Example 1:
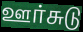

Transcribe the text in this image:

ஊர்சுடு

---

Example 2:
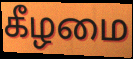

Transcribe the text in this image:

கீழமை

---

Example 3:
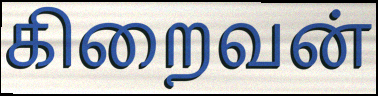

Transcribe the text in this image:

கிறைவன்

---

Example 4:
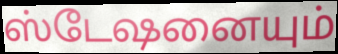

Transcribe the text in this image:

ஸ்டேஷனையும்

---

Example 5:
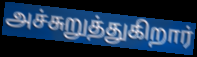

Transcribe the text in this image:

அச்சுறுத்துகிறார்